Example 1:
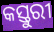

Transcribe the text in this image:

କସ୍ତୁରୀ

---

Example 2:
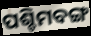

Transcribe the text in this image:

ପଶ୍ଚିମବଙ୍ଗ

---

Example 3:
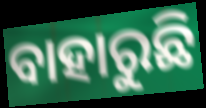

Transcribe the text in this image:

ବାହାରୁଛି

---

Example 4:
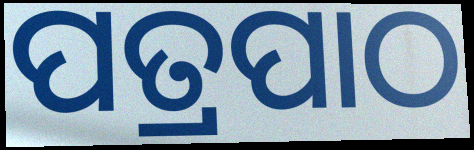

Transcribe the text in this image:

ପତ୍ରପାଠ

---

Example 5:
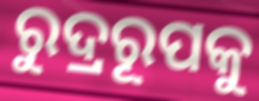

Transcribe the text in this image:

ରୁଦ୍ରରୂପକୁ